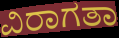
ವಿರಾಗತಾ